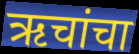
ऋचांचा